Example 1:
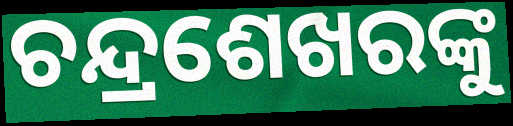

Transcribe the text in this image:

ଚନ୍ଦ୍ରଶେଖରଙ୍କୁ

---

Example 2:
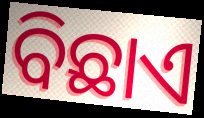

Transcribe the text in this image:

ବିଛାଏ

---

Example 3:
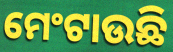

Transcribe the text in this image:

ମେଂଟାଉଛି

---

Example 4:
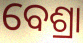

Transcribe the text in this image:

ବେଶ୍ରା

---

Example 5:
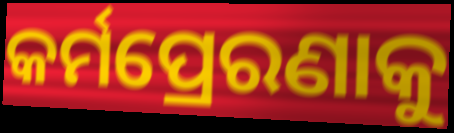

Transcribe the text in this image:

କର୍ମପ୍ରେରଣାକୁ